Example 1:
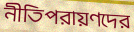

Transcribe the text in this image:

নীতিপরায়ণদের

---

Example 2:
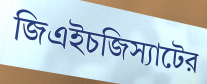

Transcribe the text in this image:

জিএইচজিস্যাটের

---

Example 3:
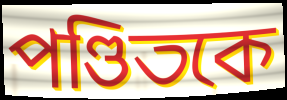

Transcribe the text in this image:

পণ্ডিতকে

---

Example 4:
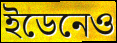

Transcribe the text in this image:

ইডেনেও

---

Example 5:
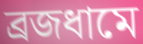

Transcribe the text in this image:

ব্রজধামে